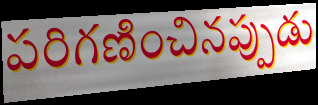
పరిగణించినప్పుడు